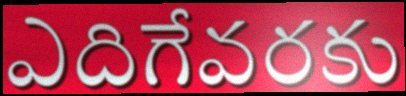
ఎదిగేవరకు